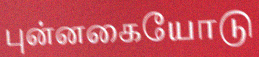
புன்னகையோடு